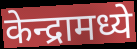
केन्द्रामध्ये